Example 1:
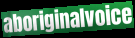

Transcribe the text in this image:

aboriginalvoice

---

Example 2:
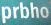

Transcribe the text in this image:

prbho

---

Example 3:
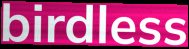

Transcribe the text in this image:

birdless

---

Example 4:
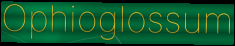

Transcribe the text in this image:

Ophioglossum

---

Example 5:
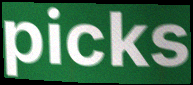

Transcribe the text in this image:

picks